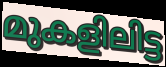
മുകളിലിട്ട